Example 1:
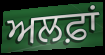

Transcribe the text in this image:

ਅਲਫ਼ਾਂ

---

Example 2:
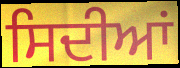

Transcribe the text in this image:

ਸਿਦੀਆਂ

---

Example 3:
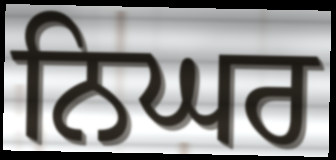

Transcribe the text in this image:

ਨਿਘਰ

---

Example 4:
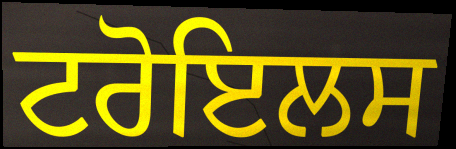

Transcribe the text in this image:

ਟਰੋਇਲਸ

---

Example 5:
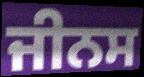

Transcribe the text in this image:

ਜੀਨਸ